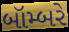
બૉમ્બરે